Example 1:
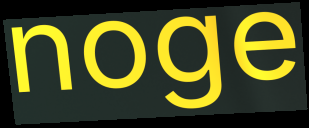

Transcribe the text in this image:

noge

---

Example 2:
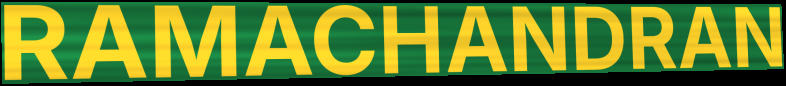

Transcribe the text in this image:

RAMACHANDRAN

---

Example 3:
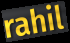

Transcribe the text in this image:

rahil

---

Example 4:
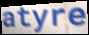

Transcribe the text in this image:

atyre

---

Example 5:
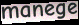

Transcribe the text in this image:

manege